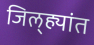
जिल्ह्यांत